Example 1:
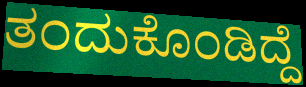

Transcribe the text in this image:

ತಂದುಕೊಂಡಿದ್ದೆ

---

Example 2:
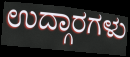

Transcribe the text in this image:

ಉದ್ಗಾರಗಳು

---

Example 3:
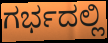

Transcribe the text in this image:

ಗರ್ಭದಲ್ಲಿ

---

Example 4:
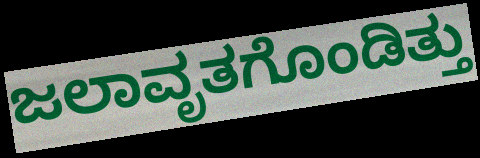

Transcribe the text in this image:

ಜಲಾವೃತಗೊಂಡಿತ್ತು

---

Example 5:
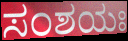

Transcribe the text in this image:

ಸಂಶಯಃ